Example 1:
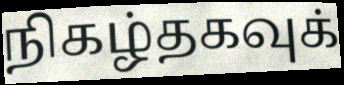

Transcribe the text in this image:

நிகழ்தகவுக்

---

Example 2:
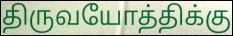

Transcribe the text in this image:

திருவயோத்திக்கு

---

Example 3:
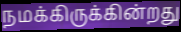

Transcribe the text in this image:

நமக்கிருக்கின்றது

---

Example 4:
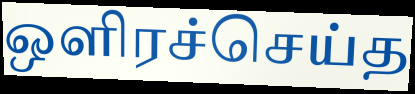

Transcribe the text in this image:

ஒளிரச்செய்த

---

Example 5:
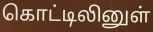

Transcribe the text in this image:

கொட்டிலினுள்